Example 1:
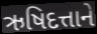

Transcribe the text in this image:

ઋષિદત્તાને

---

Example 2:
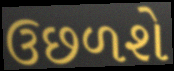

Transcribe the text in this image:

ઉછળશે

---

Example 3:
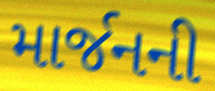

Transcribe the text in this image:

માર્જનની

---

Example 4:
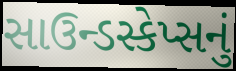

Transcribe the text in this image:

સાઉન્ડસ્કેપ્સનું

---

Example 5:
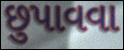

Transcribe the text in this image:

છુપાવવા